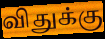
விதுக்கு